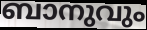
ബാനുവും